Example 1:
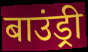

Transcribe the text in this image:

बाउंड्री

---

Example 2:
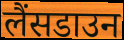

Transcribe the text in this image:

लैंसडाउन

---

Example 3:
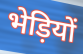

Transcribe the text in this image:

भेड़ियों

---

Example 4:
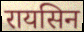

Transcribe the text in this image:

रायसिन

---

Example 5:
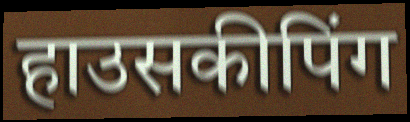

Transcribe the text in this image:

हाउसकीपिंग